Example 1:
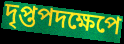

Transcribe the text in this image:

দৃপ্তপদক্ষেপে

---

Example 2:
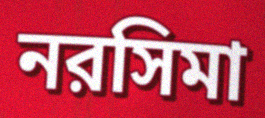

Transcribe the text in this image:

নরসিমা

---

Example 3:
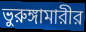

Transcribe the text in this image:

ভুরুঙ্গামারীর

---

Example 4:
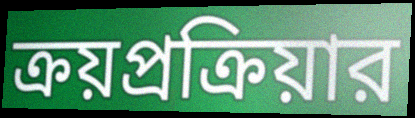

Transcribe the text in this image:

ক্রয়প্রক্রিয়ার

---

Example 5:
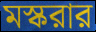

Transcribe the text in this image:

মস্করার